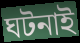
ঘটনাই